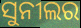
ସୁନୀଲର